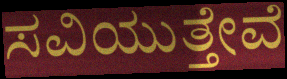
ಸವಿಯುತ್ತೇವೆ